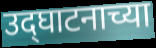
उद्घाटनाच्या